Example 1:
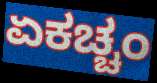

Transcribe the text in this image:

ಏಕಚ್ಚಂ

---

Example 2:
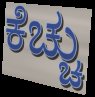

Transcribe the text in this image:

ಕೆಚ್ಚು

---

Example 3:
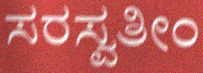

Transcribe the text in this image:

ಸರಸ್ವತೀಂ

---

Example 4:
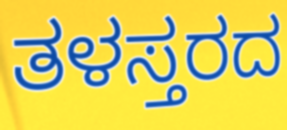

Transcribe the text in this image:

ತಳಸ್ತರದ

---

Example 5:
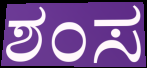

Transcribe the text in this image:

ಶಂಸ